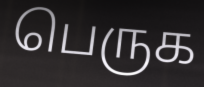
பெருக